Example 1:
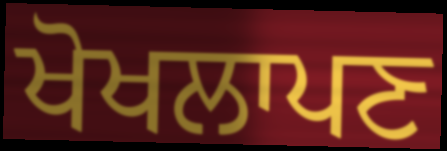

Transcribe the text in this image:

ਖੋਖਲਾਪਣ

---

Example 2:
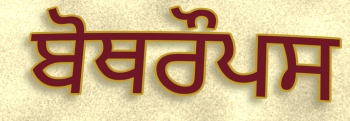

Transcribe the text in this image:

ਬੋਥਰੌਪਸ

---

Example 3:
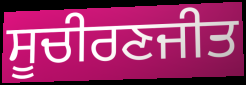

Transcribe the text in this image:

ਸੂਚੀਰਣਜੀਤ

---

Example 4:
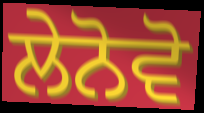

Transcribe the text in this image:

ਲੇਨੋਵੋ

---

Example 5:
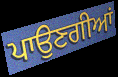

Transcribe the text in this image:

ਪਾਉਣਗੀਆਂ